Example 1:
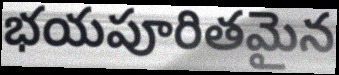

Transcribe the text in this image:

భయపూరితమైన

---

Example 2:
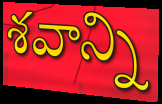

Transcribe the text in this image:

శవాన్ని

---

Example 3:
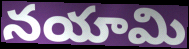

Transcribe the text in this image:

నయామి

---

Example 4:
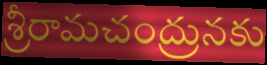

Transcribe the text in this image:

శ్రీరామచంద్రునకు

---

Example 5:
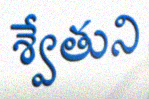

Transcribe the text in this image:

శ్వేతుని